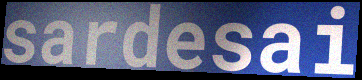
sardesai